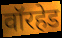
वॉरहेड